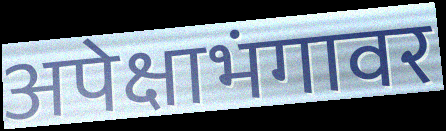
अपेक्षाभंगावर